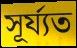
সূৰ্য্যত